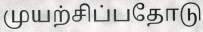
முயற்சிப்பதோடு